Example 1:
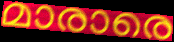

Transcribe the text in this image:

മാരാരെ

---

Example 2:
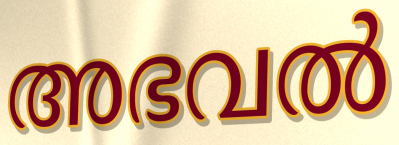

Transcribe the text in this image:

അഭവൽ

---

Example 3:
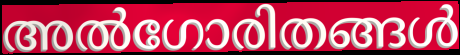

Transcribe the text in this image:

അൽഗോരിതങ്ങൾ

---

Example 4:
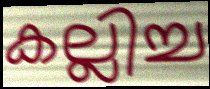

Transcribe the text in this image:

കല്ലിച്ച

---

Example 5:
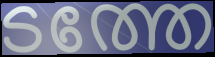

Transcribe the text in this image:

ടത്തേ